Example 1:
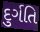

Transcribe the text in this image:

દુર્ગતિ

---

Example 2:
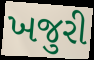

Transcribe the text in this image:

ખજુરી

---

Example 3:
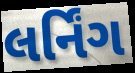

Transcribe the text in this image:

લર્નિંગ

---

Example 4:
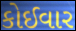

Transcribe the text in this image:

કોઈવાર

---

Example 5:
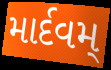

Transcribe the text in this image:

માર્દવમ્